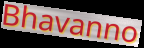
Bhavanno